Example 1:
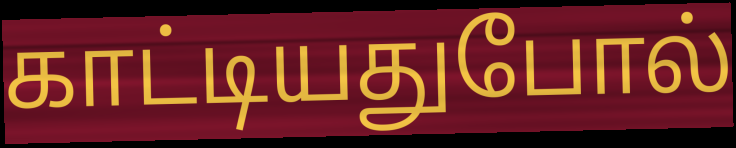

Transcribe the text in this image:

காட்டியதுபோல்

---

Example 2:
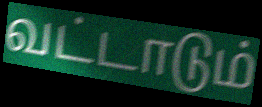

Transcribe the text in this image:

வட்டாடும்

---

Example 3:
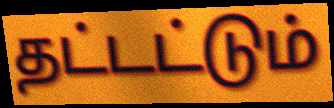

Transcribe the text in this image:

தட்டட்டும்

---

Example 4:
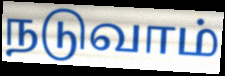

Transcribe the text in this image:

நடுவாம்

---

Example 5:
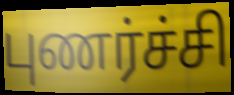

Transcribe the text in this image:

புணர்ச்சி